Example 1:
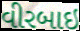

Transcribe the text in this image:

વીરબાઇ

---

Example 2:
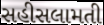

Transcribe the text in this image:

સહીસલામતી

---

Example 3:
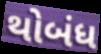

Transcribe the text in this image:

થોબંધ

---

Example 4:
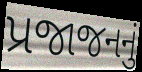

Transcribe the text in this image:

પ્રજાજનનું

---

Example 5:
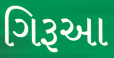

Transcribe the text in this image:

ગિરૂઆ